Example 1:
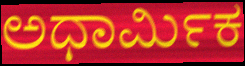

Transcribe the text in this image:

ಅಧಾರ್ಮಿಕ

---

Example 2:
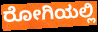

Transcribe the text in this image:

ರೋಗಿಯಲ್ಲಿ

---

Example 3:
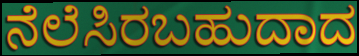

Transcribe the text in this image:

ನೆಲೆಸಿರಬಹುದಾದ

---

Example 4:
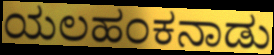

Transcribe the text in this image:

ಯಲಹಂಕನಾಡು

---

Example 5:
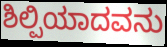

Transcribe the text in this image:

ಶಿಲ್ಪಿಯಾದವನು